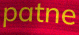
patne